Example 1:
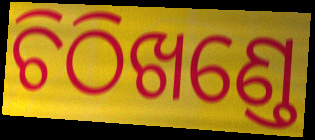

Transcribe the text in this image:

ଚିଠିଖଣ୍ଡେ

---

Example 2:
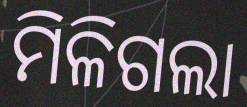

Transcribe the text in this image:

ମିଳିଗଲା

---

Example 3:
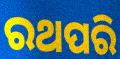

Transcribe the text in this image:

ରଥପରି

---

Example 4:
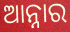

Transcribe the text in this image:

ଆନ୍ନାର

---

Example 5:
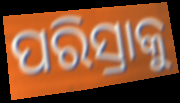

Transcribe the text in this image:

ପରିସ୍ରାକୁ